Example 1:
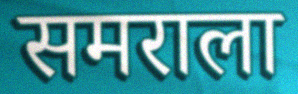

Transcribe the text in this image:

समराला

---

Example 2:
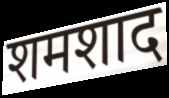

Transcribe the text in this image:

शमशाद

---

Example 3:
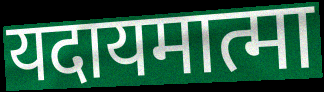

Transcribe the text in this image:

यदायमात्मा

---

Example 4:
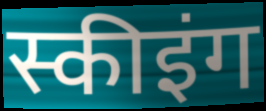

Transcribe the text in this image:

स्कीइंग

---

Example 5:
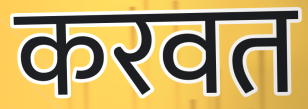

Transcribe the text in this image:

करवत